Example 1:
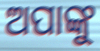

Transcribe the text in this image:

ଅପାଙ୍କୁ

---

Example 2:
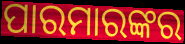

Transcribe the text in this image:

ପାରମାରଙ୍କର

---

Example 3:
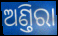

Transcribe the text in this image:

ଅଣ୍ତିରା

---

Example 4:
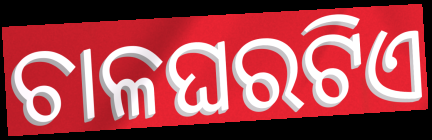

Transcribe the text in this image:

ଚାଳଘରଟିଏ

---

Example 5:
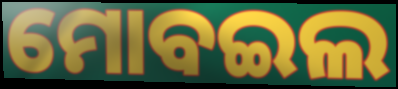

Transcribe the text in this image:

ମୋବଇଲ